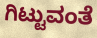
ಗಿಟ್ಟುವಂತೆ